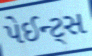
પેઈન્ટ્સ